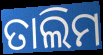
ତାଲିମ